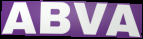
ABVA